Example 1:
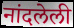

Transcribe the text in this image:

नांदलेली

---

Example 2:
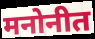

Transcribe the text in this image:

मनोनीत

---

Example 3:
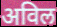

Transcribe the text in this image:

अविल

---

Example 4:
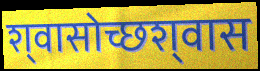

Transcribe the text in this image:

श्वासोच्छश्वास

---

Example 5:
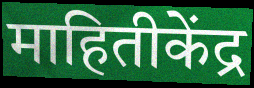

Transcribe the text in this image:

माहितीकेंद्र